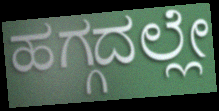
ಹಗ್ಗದಲ್ಲೇ